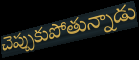
చెప్పుకుపోతున్నాడు